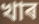
খাৰ